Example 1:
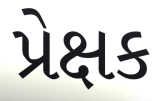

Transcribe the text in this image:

પ્રેક્ષક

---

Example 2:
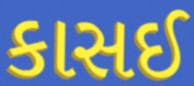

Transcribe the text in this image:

કાસઈ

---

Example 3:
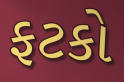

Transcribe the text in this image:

ફટકો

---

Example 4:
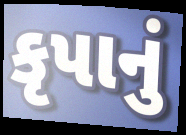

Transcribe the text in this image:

કૃપાનું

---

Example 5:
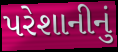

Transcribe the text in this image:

પરેશાનીનું